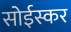
सोईस्कर